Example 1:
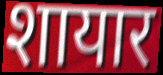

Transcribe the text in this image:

शायार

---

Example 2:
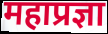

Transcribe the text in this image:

महाप्रज्ञा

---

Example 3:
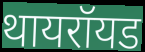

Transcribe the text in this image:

थायरॉयड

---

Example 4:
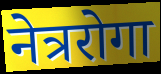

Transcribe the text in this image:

नेत्ररोगा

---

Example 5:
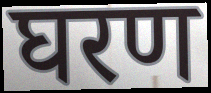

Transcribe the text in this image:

घरण